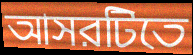
আসরটিতে